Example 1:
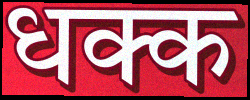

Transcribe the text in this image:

धक्क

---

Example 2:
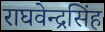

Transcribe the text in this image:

राघवेन्द्रसिंह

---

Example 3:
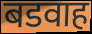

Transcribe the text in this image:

बडवाह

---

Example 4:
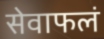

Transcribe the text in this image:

सेवाफलं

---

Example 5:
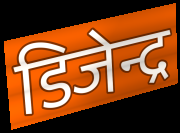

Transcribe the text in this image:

डिजेन्द्र